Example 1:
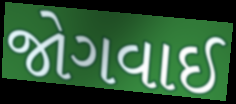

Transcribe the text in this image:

જોગવાઈ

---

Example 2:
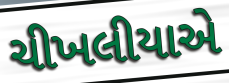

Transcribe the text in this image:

ચીખલીયાએ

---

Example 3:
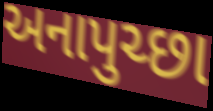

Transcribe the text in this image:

અનાપુચ્છા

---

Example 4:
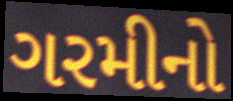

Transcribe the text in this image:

ગરમીનો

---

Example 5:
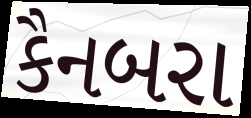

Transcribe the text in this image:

કૈનબરા